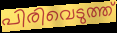
പിരിവെടുത്ത്